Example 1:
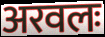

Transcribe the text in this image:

अरवलः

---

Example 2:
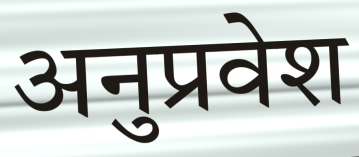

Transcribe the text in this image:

अनुप्रवेश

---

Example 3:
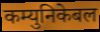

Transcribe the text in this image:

कम्युनिकेबल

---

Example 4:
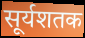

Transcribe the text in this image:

सूर्यशतक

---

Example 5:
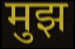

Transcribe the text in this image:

मुझ